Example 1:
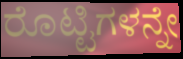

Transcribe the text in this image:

ರೊಟ್ಟಿಗಳನ್ನೇ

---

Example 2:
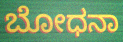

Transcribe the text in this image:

ಬೋಧನಾ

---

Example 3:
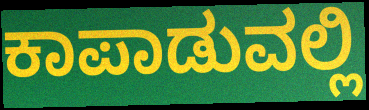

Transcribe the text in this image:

ಕಾಪಾಡುವಲ್ಲಿ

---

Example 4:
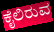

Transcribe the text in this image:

ಕೈಲಿರುವ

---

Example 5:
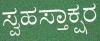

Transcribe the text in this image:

ಸ್ವಹಸ್ತಾಕ್ಷರ